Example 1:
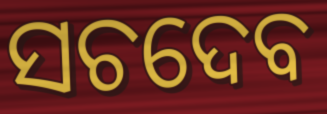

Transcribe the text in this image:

ସଚଦେବ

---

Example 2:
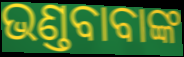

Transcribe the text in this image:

ଭଣ୍ଡବାବାଙ୍କ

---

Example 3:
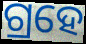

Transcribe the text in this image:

ଗ୍ରହେ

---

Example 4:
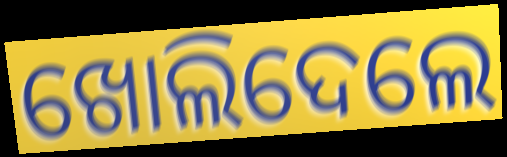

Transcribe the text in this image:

ଖୋଲିଦେଲେ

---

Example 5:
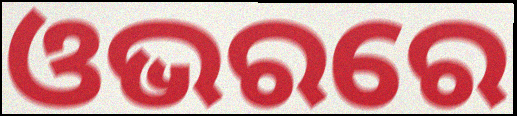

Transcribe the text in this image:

ଓଭରରେ